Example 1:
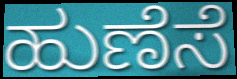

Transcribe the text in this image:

ಹುಣೆಸೆ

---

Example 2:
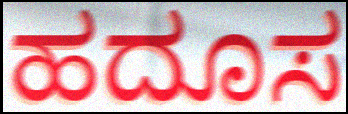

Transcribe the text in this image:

ಹದೂಸ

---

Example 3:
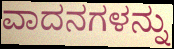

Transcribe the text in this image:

ವಾದನಗಳನ್ನು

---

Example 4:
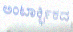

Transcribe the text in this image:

ಅಂಟಾರ್ಕ್ಟಿಕದ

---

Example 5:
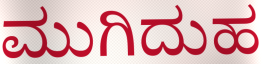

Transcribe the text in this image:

ಮುಗಿದುಹ